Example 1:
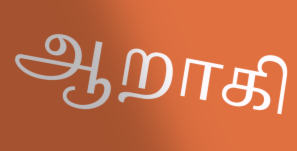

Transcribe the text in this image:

ஆறாகி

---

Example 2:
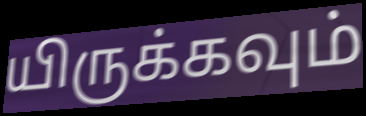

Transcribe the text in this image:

யிருக்கவும்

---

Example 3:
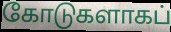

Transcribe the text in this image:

கோடுகளாகப்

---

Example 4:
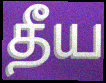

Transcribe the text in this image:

தீய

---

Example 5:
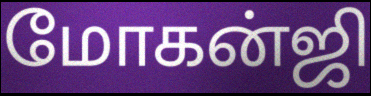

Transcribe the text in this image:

மோகன்ஜி